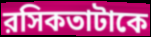
রসিকতাটাকে